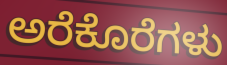
ಅರೆಕೊರೆಗಳು